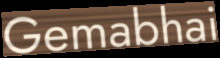
Gemabhai